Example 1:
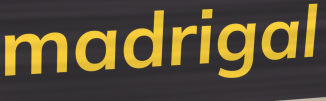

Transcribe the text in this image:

madrigal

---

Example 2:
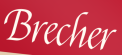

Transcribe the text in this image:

Brecher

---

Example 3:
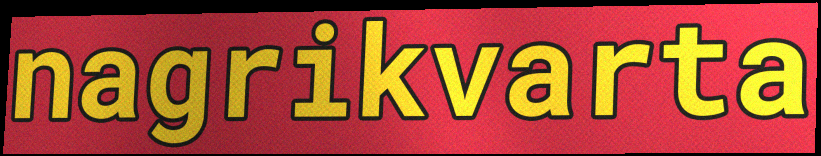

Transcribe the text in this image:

nagrikvarta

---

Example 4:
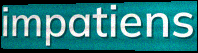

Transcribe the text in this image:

impatiens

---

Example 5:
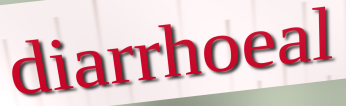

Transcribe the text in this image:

diarrhoeal